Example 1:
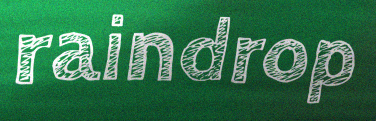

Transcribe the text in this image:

raindrop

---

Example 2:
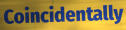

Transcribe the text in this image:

Coincidentally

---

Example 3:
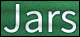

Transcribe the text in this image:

Jars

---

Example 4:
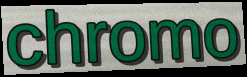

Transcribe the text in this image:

chromo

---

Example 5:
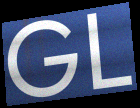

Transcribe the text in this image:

GL